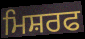
ਮਿਸ਼ਰਫ